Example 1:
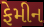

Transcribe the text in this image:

ફેમીન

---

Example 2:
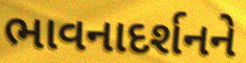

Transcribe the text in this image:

ભાવનાદર્શનને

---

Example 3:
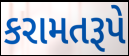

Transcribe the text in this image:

કરામતરૂપે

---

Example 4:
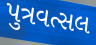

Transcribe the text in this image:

પુત્રવત્સલ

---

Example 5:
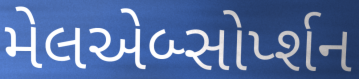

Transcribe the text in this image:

મેલએબ્સોર્પ્શન